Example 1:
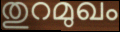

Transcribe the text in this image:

തുറമുഖം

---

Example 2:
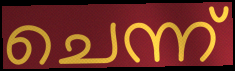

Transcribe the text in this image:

ചെന്ന്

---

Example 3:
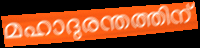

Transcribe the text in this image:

മഹാദുരന്തത്തിന്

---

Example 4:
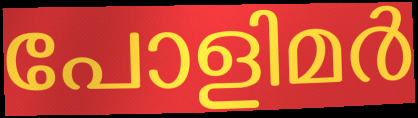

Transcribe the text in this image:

പോളിമർ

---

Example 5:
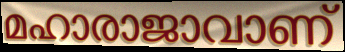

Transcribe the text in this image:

മഹാരാജാവാണ്